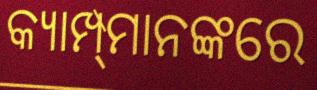
କ୍ୟାମ୍ପ୍‍ମାନଙ୍କରେ